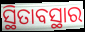
ସ୍ଥିତାବସ୍ଥାର